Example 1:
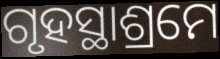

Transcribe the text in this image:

ଗୃହସ୍ଥାଶ୍ରମେ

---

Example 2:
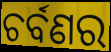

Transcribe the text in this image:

ଚର୍ବଣର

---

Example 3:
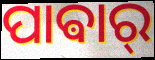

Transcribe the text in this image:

ପାଵାର୍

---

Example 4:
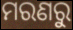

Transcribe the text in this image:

ମରଣରୁ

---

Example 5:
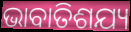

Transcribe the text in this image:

ଭାବାତିଶଯ୍ୟ